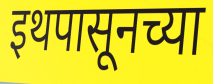
इथपासूनच्या